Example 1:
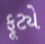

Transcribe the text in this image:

ફૂટ્યે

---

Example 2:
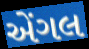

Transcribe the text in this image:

એંગલ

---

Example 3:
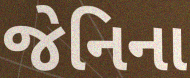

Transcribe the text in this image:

જેનિના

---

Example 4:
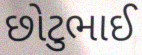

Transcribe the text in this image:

છોટુભાઈ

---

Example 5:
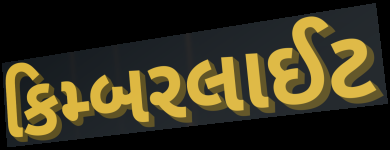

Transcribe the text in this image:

કિમ્બરલાઈટ